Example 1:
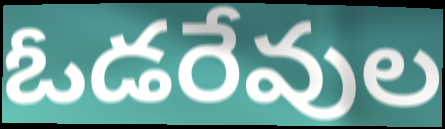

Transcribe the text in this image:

ఓడరేవుల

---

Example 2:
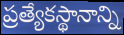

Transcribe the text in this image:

ప్రత్యేకస్థానాన్ని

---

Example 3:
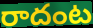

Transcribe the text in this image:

రాదంట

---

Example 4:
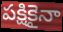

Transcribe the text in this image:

పక్షికైనా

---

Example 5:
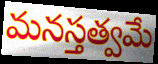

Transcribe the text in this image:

మనస్తత్వమే